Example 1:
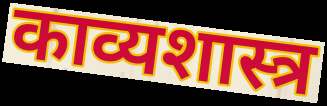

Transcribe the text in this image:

काव्यशास्त्र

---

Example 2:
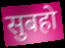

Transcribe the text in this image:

सुबहो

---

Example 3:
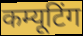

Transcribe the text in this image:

कम्यूटिंग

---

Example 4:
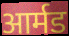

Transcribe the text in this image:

आर्मड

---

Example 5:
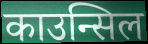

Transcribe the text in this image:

काउन्सिल